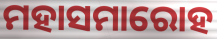
ମହାସମାରୋହ